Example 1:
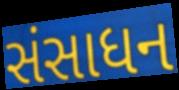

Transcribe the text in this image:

સંસાધન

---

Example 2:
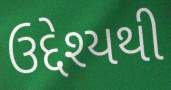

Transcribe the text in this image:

ઉદ્દેશ્યથી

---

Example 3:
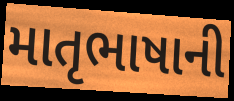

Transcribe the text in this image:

માતૃભાષાની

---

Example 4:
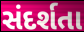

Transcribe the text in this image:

સંદર્શતા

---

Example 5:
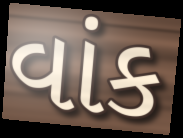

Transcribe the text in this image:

વાંક